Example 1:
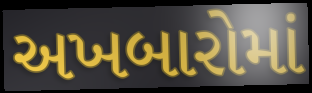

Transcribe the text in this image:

અખબારોમાં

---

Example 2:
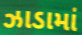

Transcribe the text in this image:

ઝાડામાં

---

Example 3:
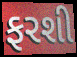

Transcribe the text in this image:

ફરશી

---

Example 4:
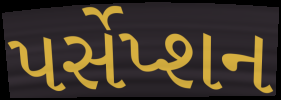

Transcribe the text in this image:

પર્સેપ્શન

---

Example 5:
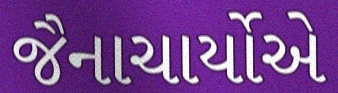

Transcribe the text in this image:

જૈનાચાર્યોએ